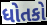
ધોતકો